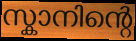
സ്കാനിന്റെ